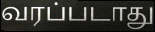
வரப்படாது